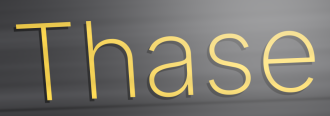
Thase